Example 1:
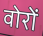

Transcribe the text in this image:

वोरों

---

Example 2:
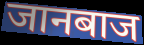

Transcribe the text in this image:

जानबाज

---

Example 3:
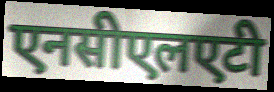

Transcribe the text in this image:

एनसीएलएटी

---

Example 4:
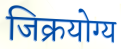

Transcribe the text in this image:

जिक्रयोग्य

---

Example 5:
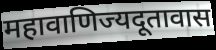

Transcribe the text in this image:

महावाणिज्यदूतावास